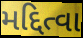
મદ્દિત્વા